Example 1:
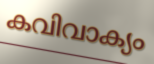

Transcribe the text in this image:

കവിവാക്യം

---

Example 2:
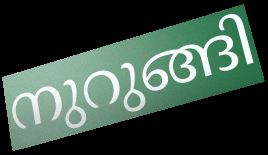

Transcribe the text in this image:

നുറുങ്ങി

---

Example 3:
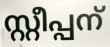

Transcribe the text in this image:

സ്റ്റീപ്പന്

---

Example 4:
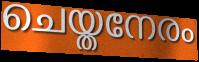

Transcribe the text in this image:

ചെയ്തനേരം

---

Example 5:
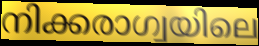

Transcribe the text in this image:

നിക്കരാഗ്വയിലെ